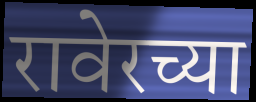
रावेरच्या